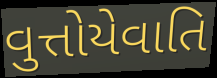
વુત્તોયેવાતિ